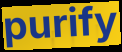
purify